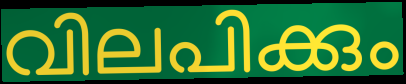
വിലപിക്കും